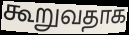
கூறுவதாக